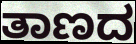
ತಾಣದ